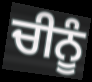
ਚੀਨੂੰ